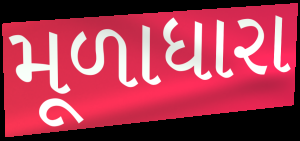
મૂળાધારા